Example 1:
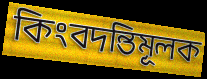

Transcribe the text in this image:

কিংবদন্তিমূলক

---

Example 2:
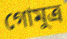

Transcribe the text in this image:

গোমুত্ৰ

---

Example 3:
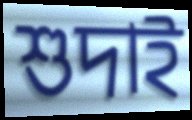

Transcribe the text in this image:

শুদাই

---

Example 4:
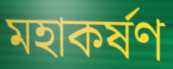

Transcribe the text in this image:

মহাকৰ্ষণ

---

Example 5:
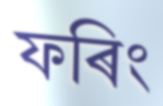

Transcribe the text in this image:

ফৰিং